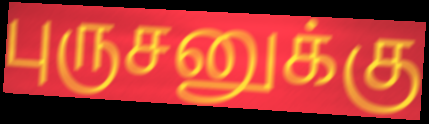
புருசனுக்கு